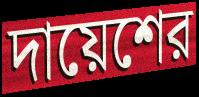
দায়েশের